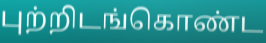
புற்றிடங்கொண்ட